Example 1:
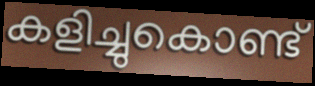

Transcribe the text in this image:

കളിച്ചുകൊണ്ട്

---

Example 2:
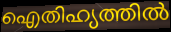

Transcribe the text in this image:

ഐതിഹ്യത്തിൽ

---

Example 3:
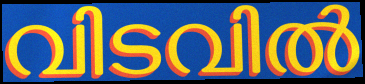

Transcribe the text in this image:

വിടവിൽ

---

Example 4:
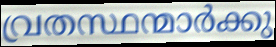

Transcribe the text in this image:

വ്രതസ്ഥന്മാർക്കു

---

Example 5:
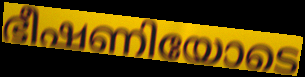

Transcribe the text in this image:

ഭീഷണിയോടെ